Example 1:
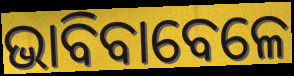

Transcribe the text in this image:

ଭାବିବାବେଳେ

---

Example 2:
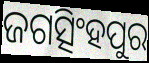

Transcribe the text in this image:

ଜଗତ୍ସିଂହପୁର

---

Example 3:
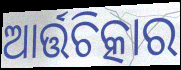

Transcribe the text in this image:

ଆର୍ତ୍ତଚିତ୍କାର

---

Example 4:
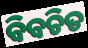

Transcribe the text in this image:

ବିବଚିତ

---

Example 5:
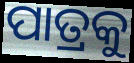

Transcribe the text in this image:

ପାତ୍ରକୁ